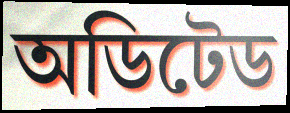
অডিটেড